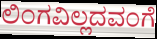
ಲಿಂಗವಿಲ್ಲದವಂಗೆ